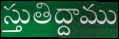
స్తుతిద్దాము